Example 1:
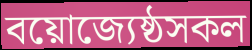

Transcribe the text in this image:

বয়োজ্যেষ্ঠসকল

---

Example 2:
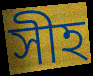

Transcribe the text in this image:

সীহ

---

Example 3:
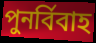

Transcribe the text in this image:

পুনৰ্বিবাহ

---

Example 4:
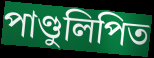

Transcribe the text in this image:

পাণ্ডুলিপিত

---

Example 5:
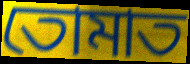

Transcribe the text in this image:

তোমাত